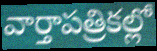
వార్తాపత్రికల్లో